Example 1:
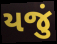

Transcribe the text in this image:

યજું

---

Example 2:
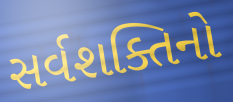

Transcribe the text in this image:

સર્વશક્તિનો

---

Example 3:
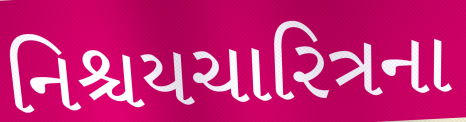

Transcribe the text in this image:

નિશ્ચયચારિત્રના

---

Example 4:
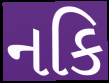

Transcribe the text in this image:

નકિ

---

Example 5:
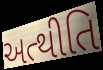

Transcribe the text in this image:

અત્થીતિ